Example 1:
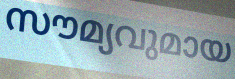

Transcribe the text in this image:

സൗമ്യവുമായ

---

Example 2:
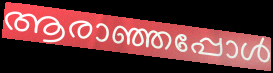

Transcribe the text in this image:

ആരാഞ്ഞപ്പോൾ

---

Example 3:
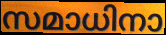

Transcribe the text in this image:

സമാധിനാ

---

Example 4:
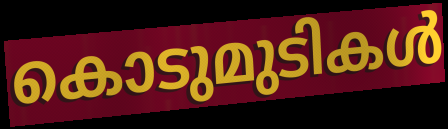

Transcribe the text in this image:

കൊടുമുടികൾ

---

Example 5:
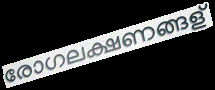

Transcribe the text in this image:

രോഗലക്ഷണങ്ങള്